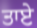
ਤਾਏ